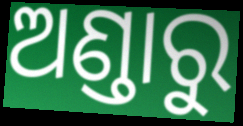
ଅଣ୍ଡାରୁ